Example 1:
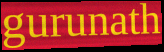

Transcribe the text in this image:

gurunath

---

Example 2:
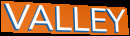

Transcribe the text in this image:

VALLEY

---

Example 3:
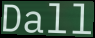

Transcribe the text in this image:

Dall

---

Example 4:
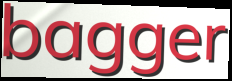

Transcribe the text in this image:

bagger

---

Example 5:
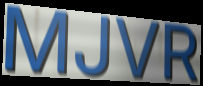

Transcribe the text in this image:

MJVR